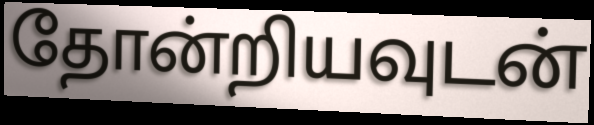
தோன்றியவுடன்